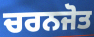
ਚਰਨਜੋਤ